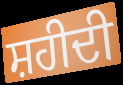
ਸ਼ਹੀਦੀ